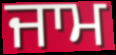
ਜਾਮ